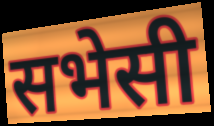
सभेसी